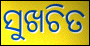
ସୁଖଚିତ